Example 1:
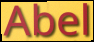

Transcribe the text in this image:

Abel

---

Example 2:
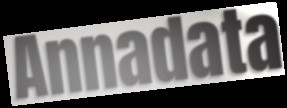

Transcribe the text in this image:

Annadata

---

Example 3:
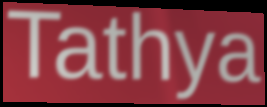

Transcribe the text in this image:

Tathya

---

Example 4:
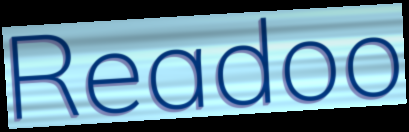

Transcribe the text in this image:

Readoo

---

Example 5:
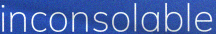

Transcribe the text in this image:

inconsolable